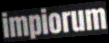
impiorum